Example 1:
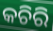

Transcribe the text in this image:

କଚିରି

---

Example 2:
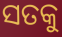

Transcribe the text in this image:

ସତକୁ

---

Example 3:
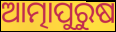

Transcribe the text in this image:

ଆତ୍ମାପୁରୁଷ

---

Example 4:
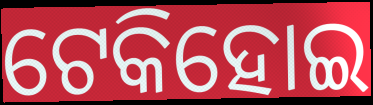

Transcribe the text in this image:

ଟେକିହୋଇ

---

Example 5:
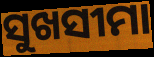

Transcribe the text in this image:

ସୁଖସୀମା